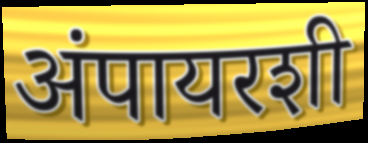
अंपायरशी